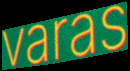
varas